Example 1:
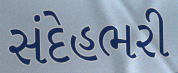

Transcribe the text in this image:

સંદેહભરી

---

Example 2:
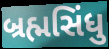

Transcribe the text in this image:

બ્રહ્મસિંધુ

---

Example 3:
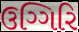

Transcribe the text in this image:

ઉગ્ગિરિ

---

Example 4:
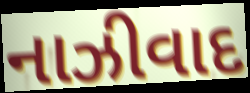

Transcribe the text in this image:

નાઝીવાદ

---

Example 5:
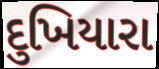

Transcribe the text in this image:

દુખિયારા